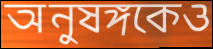
অনুষঙ্গকেও